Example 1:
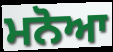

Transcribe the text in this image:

ਮਨੋਆ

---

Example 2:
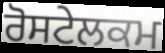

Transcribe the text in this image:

ਰੋਸਟੇਲਕਮ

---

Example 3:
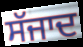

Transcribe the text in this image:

ਸੱਜਾਦ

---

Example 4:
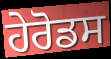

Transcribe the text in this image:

ਹੇਰੋਡਸ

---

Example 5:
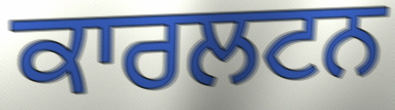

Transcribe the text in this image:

ਕਾਰਲਟਨ